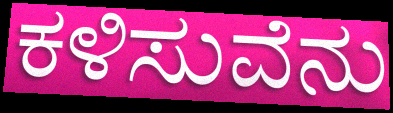
ಕಳಿಸುವೆನು